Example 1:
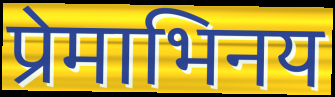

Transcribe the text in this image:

प्रेमाभिनय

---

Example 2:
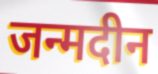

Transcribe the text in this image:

जन्मदीन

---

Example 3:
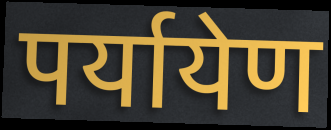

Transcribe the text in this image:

पर्यायेण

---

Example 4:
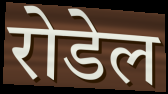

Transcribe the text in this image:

रोडेल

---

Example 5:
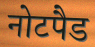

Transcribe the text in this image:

नोटपैड